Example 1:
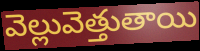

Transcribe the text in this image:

వెల్లువెత్తుతాయి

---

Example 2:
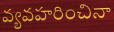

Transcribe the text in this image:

వ్యవహరించినా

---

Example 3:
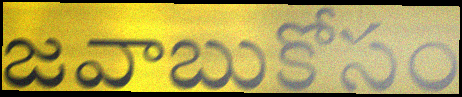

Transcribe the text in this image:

జవాబుకోసం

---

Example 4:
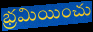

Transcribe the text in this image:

భ్రమియించు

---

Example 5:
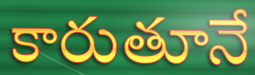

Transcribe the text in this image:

కారుతూనే